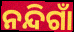
ନନ୍ଦିଗାଁ